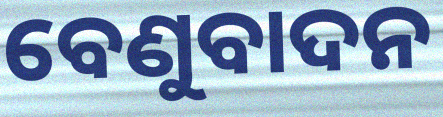
ବେଣୁବାଦନ